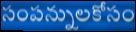
సంపన్నులకోసం